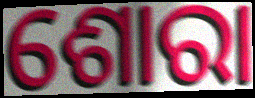
ଶୋରା